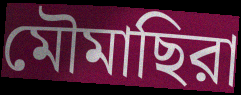
মৌমাছিরা